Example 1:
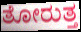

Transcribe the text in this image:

ತೋರುತ್ತ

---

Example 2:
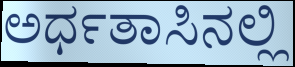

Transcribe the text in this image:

ಅರ್ಧತಾಸಿನಲ್ಲಿ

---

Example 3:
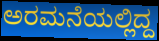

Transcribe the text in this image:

ಅರಮನೆಯಲ್ಲಿದ್ದ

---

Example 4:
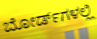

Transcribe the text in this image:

ಬೋರ್ಡ್‌ಗಳಲ್ಲಿ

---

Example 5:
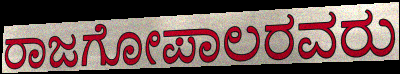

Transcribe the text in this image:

ರಾಜಗೋಪಾಲರವರು